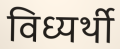
विध्यर्थी